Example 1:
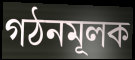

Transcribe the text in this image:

গঠনমূলক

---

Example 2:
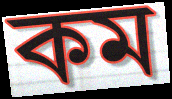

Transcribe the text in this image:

কম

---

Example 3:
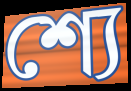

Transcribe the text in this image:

শ্যে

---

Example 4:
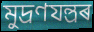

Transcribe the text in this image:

মুদ্ৰণযন্ত্ৰৰ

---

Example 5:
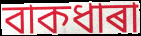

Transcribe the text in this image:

বাকধাৰা